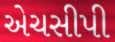
એચસીપી